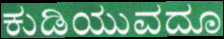
ಕುಡಿಯುವದೂ